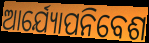
ଆର୍ଯ୍ୟୋପନିବେଶ